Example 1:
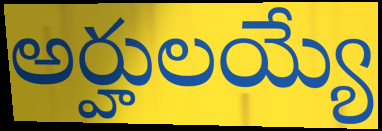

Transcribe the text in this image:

అర్హులయ్యే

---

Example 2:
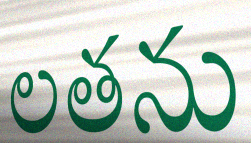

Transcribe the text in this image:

లతను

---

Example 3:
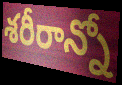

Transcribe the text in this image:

శరీరాన్నో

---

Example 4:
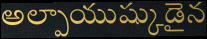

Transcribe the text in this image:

అల్పాయుష్కుడైన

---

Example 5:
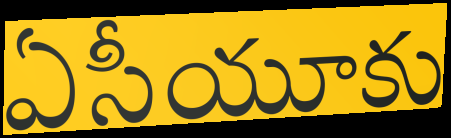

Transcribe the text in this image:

ఏసీయూకు